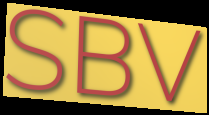
SBV